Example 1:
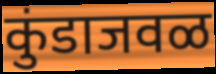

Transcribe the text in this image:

कुंडाजवळ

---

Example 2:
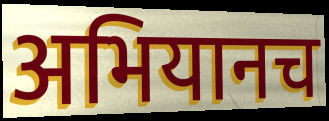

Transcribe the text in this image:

अभियानच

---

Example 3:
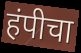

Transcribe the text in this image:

हंपीचा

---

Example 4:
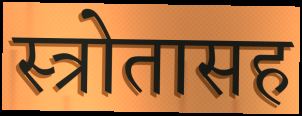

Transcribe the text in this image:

स्त्रोतासह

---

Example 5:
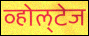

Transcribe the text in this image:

व्होल्टेज